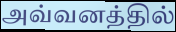
அவ்வனத்தில்